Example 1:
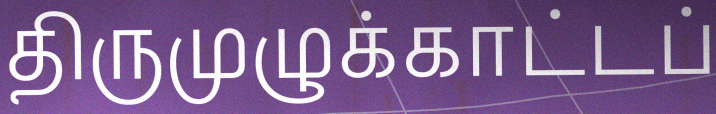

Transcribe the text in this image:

திருமுழுக்காட்டப்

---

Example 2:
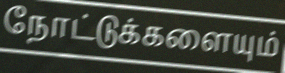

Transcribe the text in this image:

நோட்டுக்களையும்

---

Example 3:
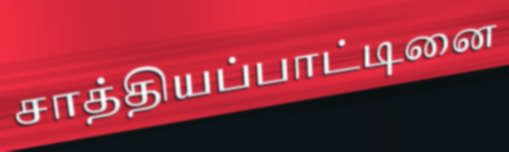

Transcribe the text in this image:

சாத்தியப்பாட்டினை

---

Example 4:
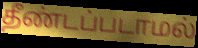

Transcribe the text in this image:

தீண்டப்படாமல்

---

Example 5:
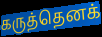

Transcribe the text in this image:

கருத்தெனக்